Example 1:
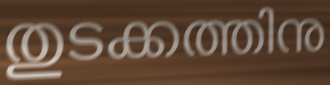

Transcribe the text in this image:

തുടക്കത്തിനു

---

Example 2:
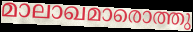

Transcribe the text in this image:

മാലാഖമാരൊത്തു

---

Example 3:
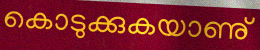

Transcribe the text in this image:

കൊടുക്കുകയാണു്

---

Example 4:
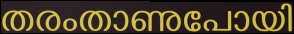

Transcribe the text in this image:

തരംതാണുപോയി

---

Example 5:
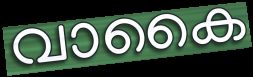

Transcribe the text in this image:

വാകൈ